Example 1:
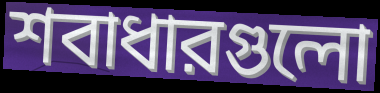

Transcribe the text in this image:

শবাধারগুলো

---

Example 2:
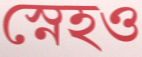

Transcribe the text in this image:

স্নেহও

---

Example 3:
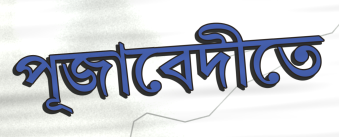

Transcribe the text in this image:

পূজাবেদীতে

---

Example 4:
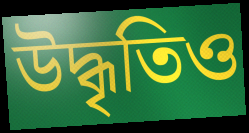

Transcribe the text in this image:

উদ্ধৃতিও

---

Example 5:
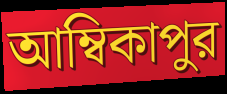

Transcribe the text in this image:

আম্বিকাপুর